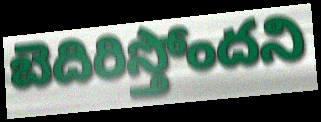
బెదిరిస్తోందని